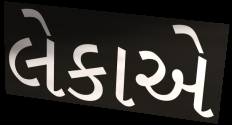
લેકાએ